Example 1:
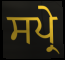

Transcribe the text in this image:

ਸਪ੍ਰੇ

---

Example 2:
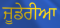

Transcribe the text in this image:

ਜੂਡੇਰੀਆ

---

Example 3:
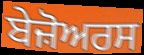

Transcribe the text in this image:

ਬੇਜ਼ੋਅਰਸ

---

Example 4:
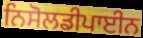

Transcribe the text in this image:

ਨਿਸੋਲਡੀਪਾਈਨ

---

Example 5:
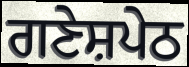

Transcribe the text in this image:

ਗਣੇਸ਼ਪੇਠ